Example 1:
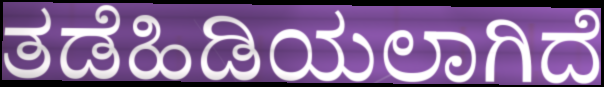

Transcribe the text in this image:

ತಡೆಹಿಡಿಯಲಾಗಿದೆ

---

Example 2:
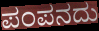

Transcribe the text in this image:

ಪಂಪನದು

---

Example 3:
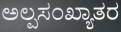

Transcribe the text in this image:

ಅಲ್ಪಸಂಖ್ಯಾತರ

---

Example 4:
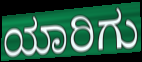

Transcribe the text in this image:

ಯಾರಿಗು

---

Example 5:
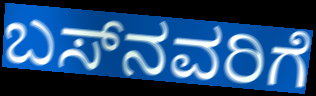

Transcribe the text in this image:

ಬಸ್‌ನವರಿಗೆ